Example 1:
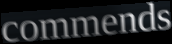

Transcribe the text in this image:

commends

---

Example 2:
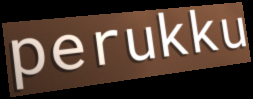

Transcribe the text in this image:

perukku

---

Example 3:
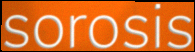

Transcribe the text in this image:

sorosis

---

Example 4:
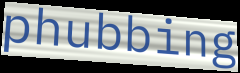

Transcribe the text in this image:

phubbing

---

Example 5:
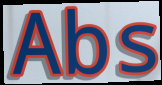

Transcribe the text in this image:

Abs